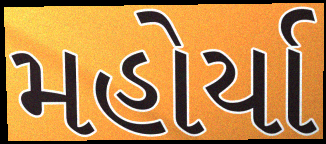
મહોર્યા